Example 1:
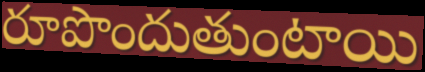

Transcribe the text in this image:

రూపొందుతుంటాయి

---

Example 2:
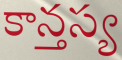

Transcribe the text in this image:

కాన్తస్య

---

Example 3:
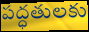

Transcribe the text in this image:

పద్ధతులకు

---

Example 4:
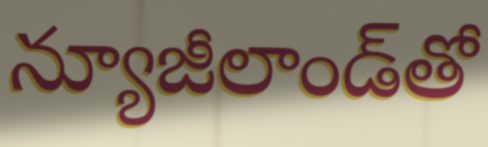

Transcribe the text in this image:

న్యూజీలాండ్‌తో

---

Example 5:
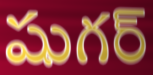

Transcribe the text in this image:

షుగర్